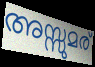
അസ്സുമര്